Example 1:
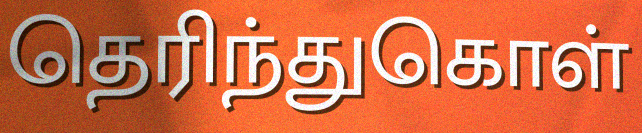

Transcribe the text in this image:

தெரிந்துகொள்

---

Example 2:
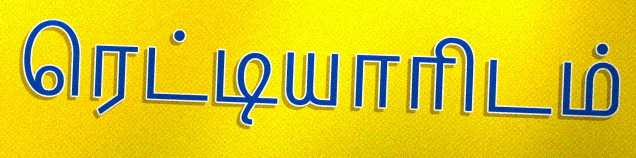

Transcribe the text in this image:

ரெட்டியாரிடம்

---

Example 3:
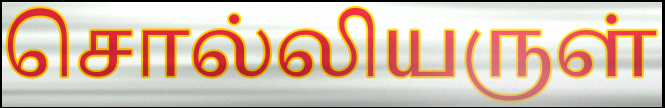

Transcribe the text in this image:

சொல்லியருள்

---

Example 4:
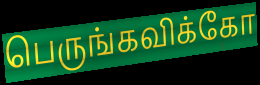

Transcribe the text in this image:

பெருங்கவிக்கோ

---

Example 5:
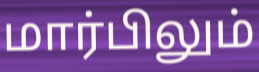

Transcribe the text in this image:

மார்பிலும்